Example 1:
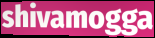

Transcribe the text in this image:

shivamogga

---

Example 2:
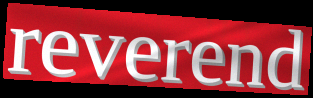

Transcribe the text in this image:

reverend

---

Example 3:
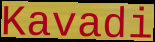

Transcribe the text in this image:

Kavadi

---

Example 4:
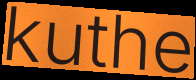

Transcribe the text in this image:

kuthe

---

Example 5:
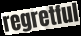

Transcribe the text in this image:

regretful